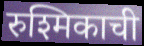
रुश्मिकाची